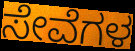
ಸೇವೆಗಳ